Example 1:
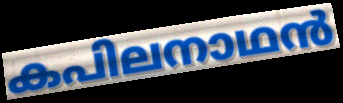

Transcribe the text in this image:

കപിലനാഥൻ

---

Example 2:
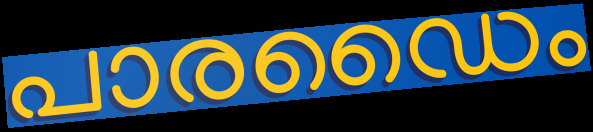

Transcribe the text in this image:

പാരഡൈം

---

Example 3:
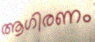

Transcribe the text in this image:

ആഗിരണം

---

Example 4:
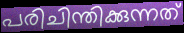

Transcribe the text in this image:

പരിചിന്തിക്കുന്നത്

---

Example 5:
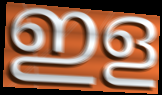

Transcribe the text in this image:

ഇള